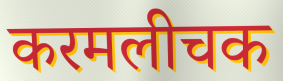
करमलीचक